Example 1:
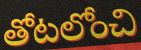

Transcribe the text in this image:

తోటలోంచి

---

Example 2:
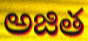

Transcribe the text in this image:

అజిత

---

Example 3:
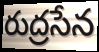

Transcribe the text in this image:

రుద్రసేన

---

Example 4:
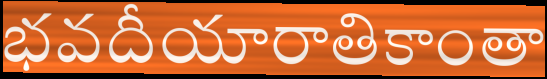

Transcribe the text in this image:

భవదీయారాతికాంతా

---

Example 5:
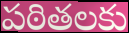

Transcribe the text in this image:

పఠితలకు